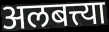
अलबत्त्या